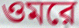
ওমরে